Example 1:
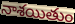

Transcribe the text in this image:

నాశయితుం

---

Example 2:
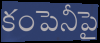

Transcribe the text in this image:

కంపెనీపై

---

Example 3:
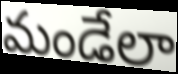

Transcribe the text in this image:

మండేలా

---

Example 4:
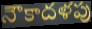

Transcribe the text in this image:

నౌకాదళపు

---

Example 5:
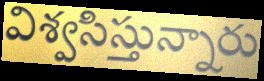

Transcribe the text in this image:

విశ్వసిస్తున్నారు